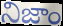
నిజాం